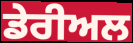
ਡੇਰੀਅਲ